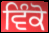
ਵਿੰਕੋ